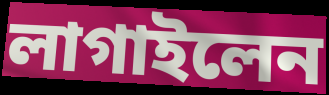
লাগাইলেন